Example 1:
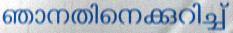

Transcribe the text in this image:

ഞാനതിനെക്കുറിച്ച്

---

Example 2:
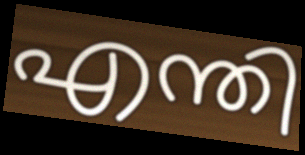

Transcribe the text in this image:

എന്തി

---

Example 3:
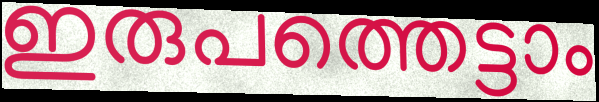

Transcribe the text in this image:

ഇരുപത്തെട്ടാം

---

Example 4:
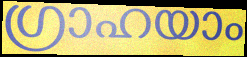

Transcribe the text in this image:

ഗ്രാഹയാം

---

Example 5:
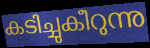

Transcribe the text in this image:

കടിച്ചുകീറുന്നു